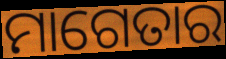
ମାଗେତାର